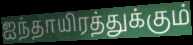
ஐந்தாயிரத்துக்கும்